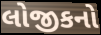
લોજીકનો